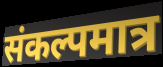
संकल्पमात्र